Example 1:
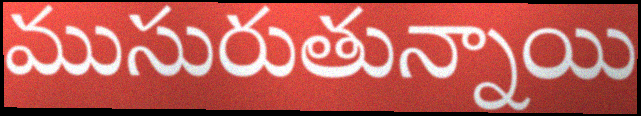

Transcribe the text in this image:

ముసురుతున్నాయి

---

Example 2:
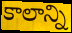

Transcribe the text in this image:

కాలాన్ని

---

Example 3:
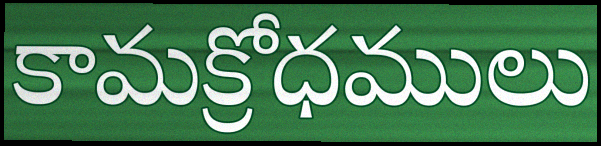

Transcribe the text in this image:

కామక్రోధములు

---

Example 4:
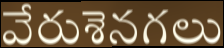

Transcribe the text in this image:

వేరుశెనగలు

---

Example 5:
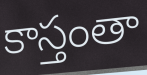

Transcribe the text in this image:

కాస్తంతా